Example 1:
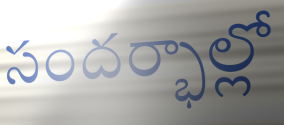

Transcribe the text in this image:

సందర్భాల్లో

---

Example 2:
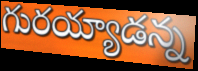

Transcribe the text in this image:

గురయ్యాడన్న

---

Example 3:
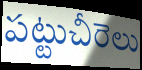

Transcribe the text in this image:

పట్టుచీరెలు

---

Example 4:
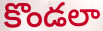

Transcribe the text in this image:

కొండలా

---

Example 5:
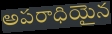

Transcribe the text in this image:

అపరాధియైన